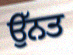
ਉੱਨਤ